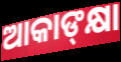
ଆକାଙ୍‍କ୍ଷା